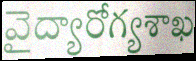
వైద్యారోగ్యశాఖ